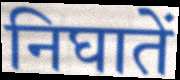
निघातें